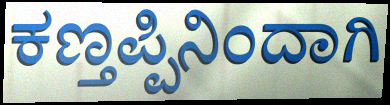
ಕಣ್ತಪ್ಪಿನಿಂದಾಗಿ